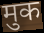
मुक